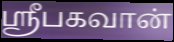
ஸ்ரீபகவான்